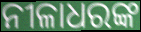
ନୀଳାଧରଙ୍କ